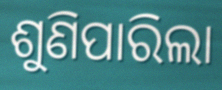
ଶୁଣିପାରିଲା